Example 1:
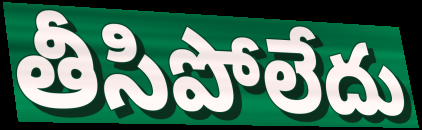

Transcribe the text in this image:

తీసిపోలేదు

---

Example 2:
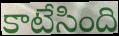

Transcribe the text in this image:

కాటేసింది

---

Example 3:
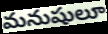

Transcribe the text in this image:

మనుషులూ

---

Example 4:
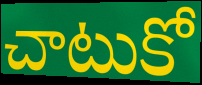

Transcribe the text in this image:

చాటుకో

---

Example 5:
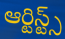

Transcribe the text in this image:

ఆర్టిస్ట్స్